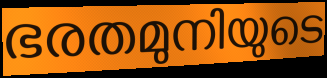
ഭരതമുനിയുടെ